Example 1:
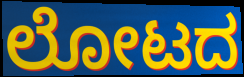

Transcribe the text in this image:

ಲೋಟದ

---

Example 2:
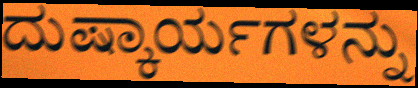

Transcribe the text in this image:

ದುಷ್ಕಾರ್ಯಗಳನ್ನು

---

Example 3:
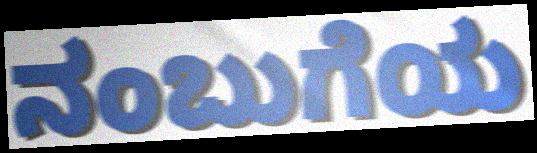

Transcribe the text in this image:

ನಂಬುಗೆಯ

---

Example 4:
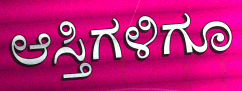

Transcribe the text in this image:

ಆಸ್ತಿಗಳಿಗೂ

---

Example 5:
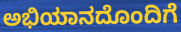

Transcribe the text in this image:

ಅಭಿಯಾನದೊಂದಿಗೆ